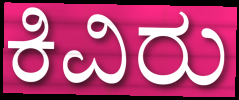
ಕಿವಿರು